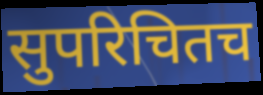
सुपरिचितच